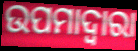
ଉପମାଦ୍ୱାରା